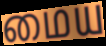
மைய